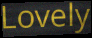
Lovely